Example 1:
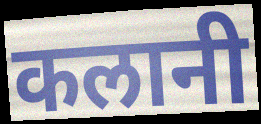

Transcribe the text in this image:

कलानी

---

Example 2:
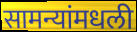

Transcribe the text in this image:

सामन्यांमधली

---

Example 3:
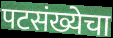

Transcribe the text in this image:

पटसंख्येचा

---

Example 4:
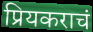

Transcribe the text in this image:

प्रियकराचं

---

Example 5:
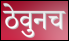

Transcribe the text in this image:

ठेवुनच